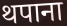
थपाना